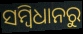
ସମ୍ବିଧାନରୁ